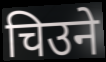
चिउने